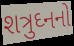
શત્રુઘ્નનો